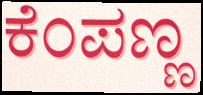
ಕೆಂಪಣ್ಣ